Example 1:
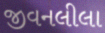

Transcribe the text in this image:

જીવનલીલા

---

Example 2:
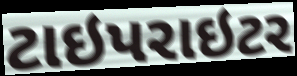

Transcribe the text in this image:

ટાઇપરાઇટર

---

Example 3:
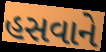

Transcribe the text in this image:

હસવાને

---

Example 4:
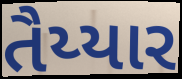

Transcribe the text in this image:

તૈય્યાર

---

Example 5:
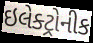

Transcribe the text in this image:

ઇલેક્ટ્રોનીક